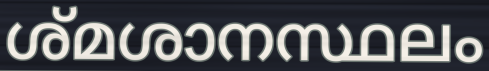
ശ്മശാനസ്ഥലം